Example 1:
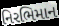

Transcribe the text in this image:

નિરભિમાન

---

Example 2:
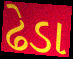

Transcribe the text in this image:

ઢેડા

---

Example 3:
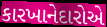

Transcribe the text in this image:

કારખાનેદારોએ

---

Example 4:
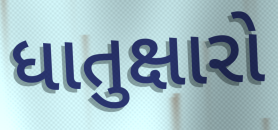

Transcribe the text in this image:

ધાતુક્ષારો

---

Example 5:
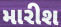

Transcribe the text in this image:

મારીશ